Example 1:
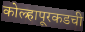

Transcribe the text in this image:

कोल्हापूरकडची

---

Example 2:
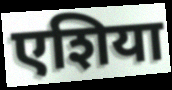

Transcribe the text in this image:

एशिया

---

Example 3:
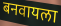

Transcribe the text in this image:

बनवायला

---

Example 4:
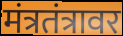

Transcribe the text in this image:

मंत्रतंत्रावर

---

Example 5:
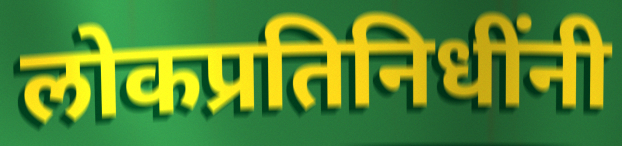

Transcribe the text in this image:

लोकप्रतिनिधींनी